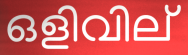
ഒളിവില്